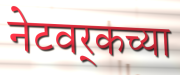
नेटवर्कच्या